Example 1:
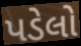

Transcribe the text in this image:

પડેલો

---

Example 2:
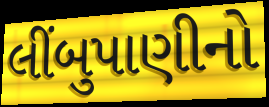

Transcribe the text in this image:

લીંબુપાણીનો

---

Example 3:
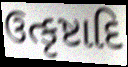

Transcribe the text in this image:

ઉત્કૃષ્ટાદિ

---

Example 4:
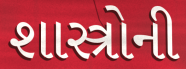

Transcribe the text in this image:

શાસ્ત્રોની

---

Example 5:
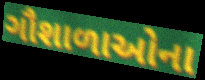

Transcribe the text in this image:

ગૌશાળાઓના